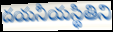
దయనీయస్థితిని